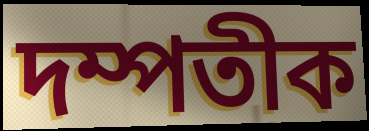
দম্পতীক